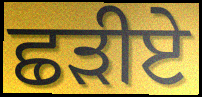
ਛੜੀਏ